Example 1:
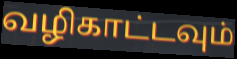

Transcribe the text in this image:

வழிகாட்டவும்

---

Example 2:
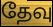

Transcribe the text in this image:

தேவு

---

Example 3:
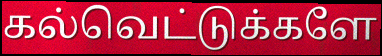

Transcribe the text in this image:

கல்வெட்டுக்களே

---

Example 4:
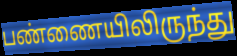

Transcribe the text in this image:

பண்ணையிலிருந்து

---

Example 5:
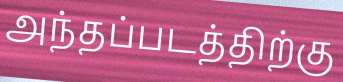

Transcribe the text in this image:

அந்தப்படத்திற்கு